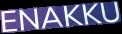
ENAKKU